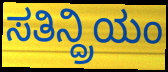
ಸತಿನ್ದ್ರಿಯಂ